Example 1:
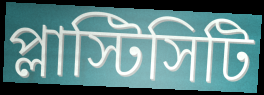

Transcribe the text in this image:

প্লাস্টিসিটি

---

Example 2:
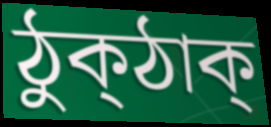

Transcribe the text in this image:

ঠুক্ঠাক্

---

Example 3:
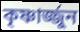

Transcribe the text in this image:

কৃষ্ণার্জ্জুন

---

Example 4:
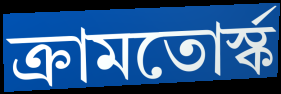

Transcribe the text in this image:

ক্রামতোর্স্ক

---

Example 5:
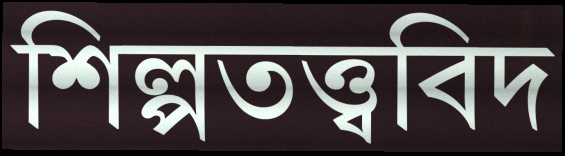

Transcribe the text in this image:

শিল্পতত্ত্ববিদ